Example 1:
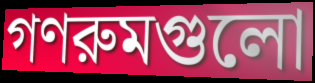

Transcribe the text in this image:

গণরুমগুলো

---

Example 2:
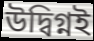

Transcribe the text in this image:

উদ্বিগ্নই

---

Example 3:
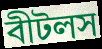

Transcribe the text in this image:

বীটলস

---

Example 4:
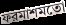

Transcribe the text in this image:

ফরমাশমতো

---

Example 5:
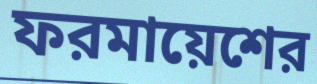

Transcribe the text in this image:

ফরমায়েশের